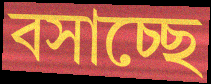
বসাচ্ছে